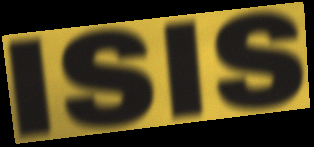
ISIS